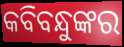
କବିବନ୍ଧୁଙ୍କର